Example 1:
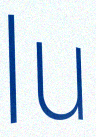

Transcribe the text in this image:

lu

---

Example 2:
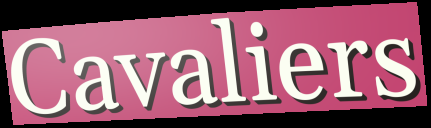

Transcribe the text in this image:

Cavaliers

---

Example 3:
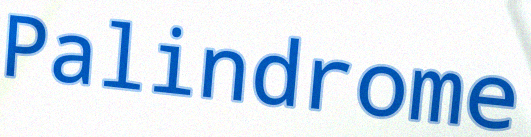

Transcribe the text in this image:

Palindrome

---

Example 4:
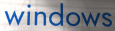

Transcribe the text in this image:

windows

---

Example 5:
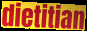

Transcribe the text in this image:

dietitian